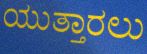
ಯುತ್ತಾರಲು